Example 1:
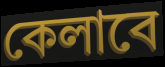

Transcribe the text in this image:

কেলাবে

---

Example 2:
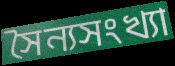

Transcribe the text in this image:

সৈন্যসংখ্যা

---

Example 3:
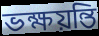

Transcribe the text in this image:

ভক্ষয়ন্তি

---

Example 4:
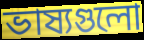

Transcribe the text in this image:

ভাষ্যগুলো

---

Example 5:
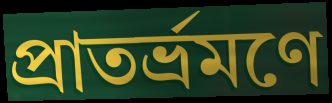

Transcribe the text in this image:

প্রাতর্ভ্রমণে